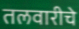
तलवारीचे